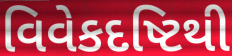
વિવેકદષ્ટિથી